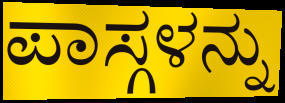
ಪಾಸ್ಗಳನ್ನು